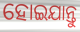
ହୋଇଯାନ୍ତୁ